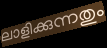
ലാളിക്കുന്നതും